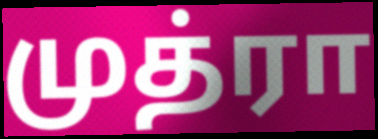
முத்ரா